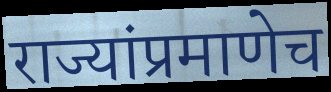
राज्यांप्रमाणेच